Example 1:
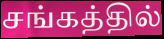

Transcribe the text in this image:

சங்கத்தில்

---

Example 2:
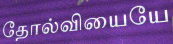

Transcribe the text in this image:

தோல்வியையே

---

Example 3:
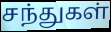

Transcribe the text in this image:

சந்துகள்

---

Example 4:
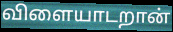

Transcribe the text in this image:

விளையாடறான்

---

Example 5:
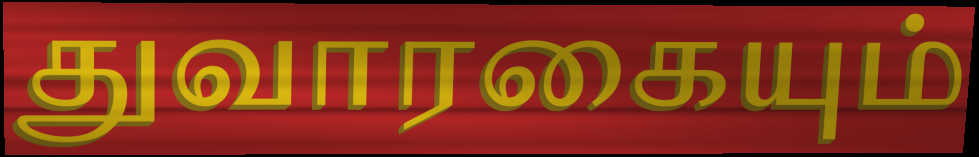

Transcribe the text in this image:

துவாரகையும்